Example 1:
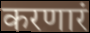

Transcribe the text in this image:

करणारं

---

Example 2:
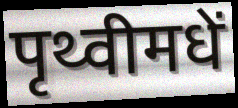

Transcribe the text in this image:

पृथ्वीमधें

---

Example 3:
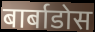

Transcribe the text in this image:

बार्बाडोस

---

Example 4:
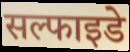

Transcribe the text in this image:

सल्फाइडे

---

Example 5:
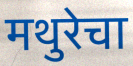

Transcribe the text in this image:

मथुरेचा